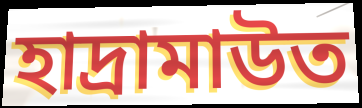
হাদ্রামাউত